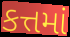
કત્તમાં